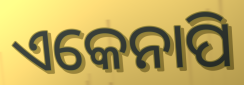
ଏକେନାପି